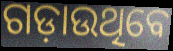
ଗଡ଼ାଉଥିବେ